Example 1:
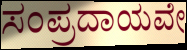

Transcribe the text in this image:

ಸಂಪ್ರದಾಯವೇ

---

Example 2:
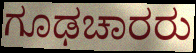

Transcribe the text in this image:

ಗೂಢಚಾರರು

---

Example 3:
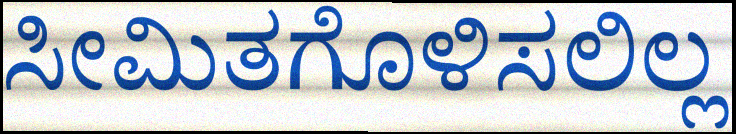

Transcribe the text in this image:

ಸೀಮಿತಗೊಳಿಸಲಿಲ್ಲ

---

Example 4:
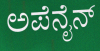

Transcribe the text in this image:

ಅಪೆನೈನ್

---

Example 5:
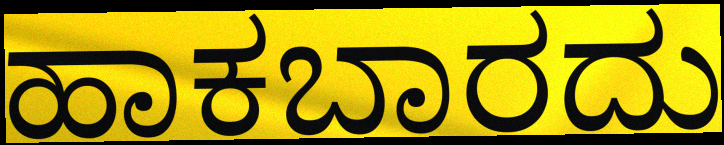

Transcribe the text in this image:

ಹಾಕಬಾರದು